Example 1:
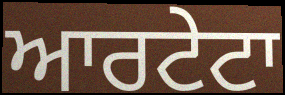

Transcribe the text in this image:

ਆਰਟੇਟਾ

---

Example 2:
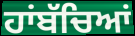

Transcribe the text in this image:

ਹਾਂਬੱਚਿਆਂ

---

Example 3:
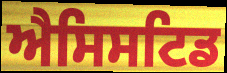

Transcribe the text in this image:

ਐਸਿਸਟਿਡ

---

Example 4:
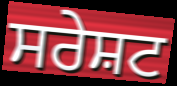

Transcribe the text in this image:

ਸਰੇਸ਼ਟ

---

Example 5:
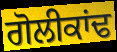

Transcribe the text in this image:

ਗੋਲੀਕਾਂਢ